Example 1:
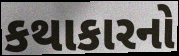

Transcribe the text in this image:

કથાકારનો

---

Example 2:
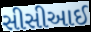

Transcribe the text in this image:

સીસીઆઈ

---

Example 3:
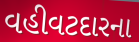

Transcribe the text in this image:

વહીવટદારના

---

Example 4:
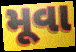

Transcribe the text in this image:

મૂવા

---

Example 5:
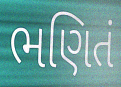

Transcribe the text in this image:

ભણિતં